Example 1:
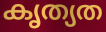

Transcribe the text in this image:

കൃത്യത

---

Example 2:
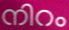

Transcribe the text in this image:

നിറം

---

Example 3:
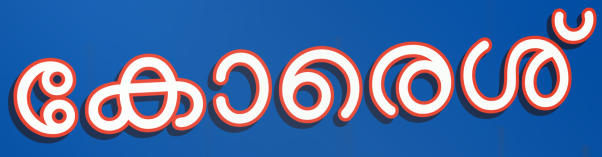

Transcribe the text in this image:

കോരെശ്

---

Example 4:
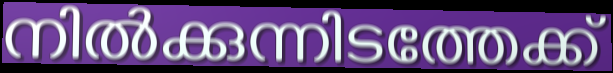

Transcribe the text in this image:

നിൽക്കുന്നിടത്തേക്ക്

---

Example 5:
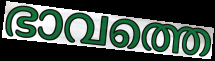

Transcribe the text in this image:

ഭാവത്തെ